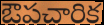
ఔపచారిక